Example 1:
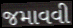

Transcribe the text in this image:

જમાવવી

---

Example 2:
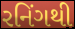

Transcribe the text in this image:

રનિંગથી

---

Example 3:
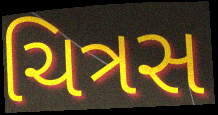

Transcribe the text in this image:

ચિત્રસ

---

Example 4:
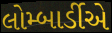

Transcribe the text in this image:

લોમ્બાર્ડીએ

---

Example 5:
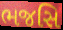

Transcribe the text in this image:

ભજસિ